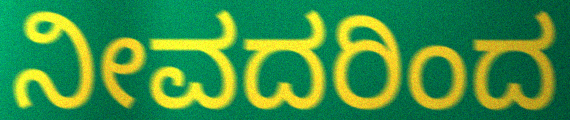
ನೀವದರಿಂದ